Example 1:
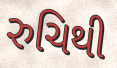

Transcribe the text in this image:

રુચિથી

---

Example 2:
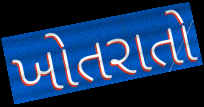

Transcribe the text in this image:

ખોતરાતો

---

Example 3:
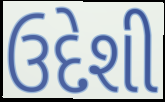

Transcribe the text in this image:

ઉદેશી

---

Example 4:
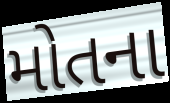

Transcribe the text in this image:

મોતના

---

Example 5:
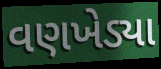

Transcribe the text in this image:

વણખેડ્યા